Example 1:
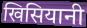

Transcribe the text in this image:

खिसियानी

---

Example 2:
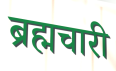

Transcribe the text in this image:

ब्रह्मचारी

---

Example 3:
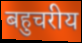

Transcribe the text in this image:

बहुचरीय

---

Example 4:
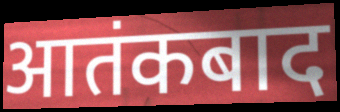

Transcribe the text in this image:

आतंकबाद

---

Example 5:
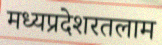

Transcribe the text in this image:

मध्यप्रदेशरतलाम